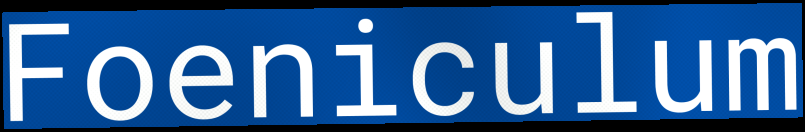
Foeniculum